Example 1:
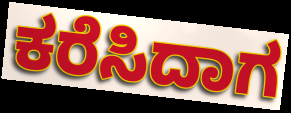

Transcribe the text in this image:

ಕರೆಸಿದಾಗ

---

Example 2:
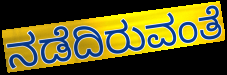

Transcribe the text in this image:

ನಡೆದಿರುವಂತೆ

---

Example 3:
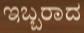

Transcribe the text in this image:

ಇಬ್ಬರಾದ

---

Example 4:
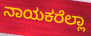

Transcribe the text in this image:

ನಾಯಕರೆಲ್ಲಾ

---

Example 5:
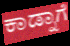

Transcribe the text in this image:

ಕಾಡ್ನಾಗೆ